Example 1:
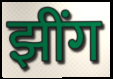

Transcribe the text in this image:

झींग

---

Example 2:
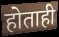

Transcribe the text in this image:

होताही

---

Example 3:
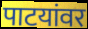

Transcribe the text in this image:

पाटयांवर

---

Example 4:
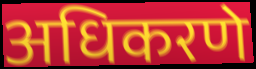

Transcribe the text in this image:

अधिकरणे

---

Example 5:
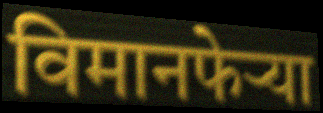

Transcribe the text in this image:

विमानफेऱ्या